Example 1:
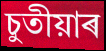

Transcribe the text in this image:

চুতীয়াৰ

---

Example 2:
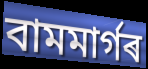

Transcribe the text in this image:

বামমাৰ্গৰ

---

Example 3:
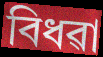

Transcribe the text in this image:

বিধৱা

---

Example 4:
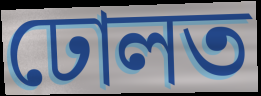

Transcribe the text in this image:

ঢোলত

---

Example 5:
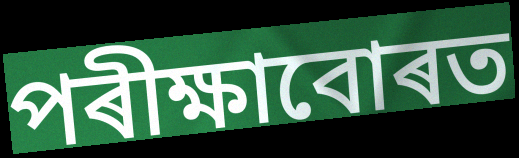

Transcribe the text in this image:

পৰীক্ষাবোৰত